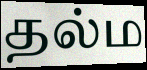
தல்ம